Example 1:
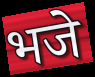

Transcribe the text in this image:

भजे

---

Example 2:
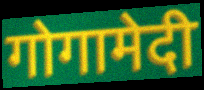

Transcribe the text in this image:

गोगामेदी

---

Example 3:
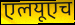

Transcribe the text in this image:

एलयूएच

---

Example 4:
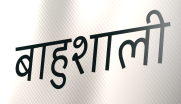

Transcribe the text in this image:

बाहुशाली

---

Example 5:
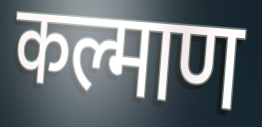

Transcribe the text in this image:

कल्माण